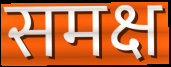
समक्ष